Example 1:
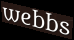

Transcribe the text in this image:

webbs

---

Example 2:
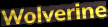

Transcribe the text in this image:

Wolverine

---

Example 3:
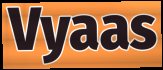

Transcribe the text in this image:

Vyaas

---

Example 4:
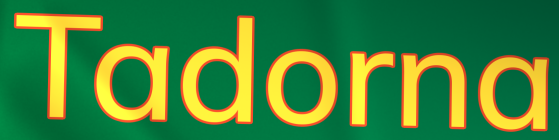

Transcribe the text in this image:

Tadorna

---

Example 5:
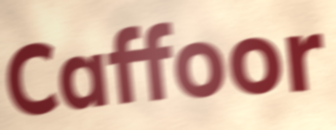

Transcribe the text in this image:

Caffoor